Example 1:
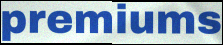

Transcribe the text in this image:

premiums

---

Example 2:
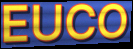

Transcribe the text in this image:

EUCO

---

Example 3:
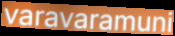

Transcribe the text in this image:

varavaramuni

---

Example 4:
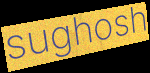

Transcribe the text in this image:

sughosh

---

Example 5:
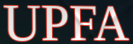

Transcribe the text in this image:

UPFA